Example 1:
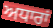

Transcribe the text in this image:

ਅਧਾਰਾਂ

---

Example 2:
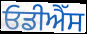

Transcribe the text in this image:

ਓਡੀਐੱਸ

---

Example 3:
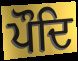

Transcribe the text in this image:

ਪੌਦਿ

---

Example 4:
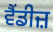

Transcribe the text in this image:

ਵੈਂਡੀਜ਼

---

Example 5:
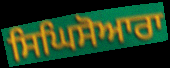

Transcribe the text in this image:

ਸਿਘਿਸੋਆਰਾ